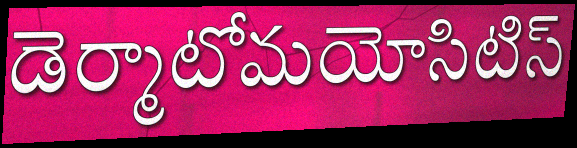
డెర్మాటోమయోసిటిస్